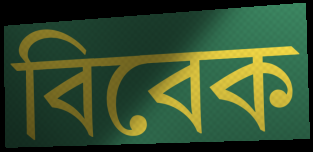
বিবেক